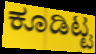
ಕೂಡಿಟ್ಟ